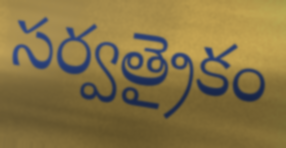
సర్వత్రైకం